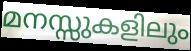
മനസ്സുകളിലും